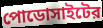
পোডোসাইটের